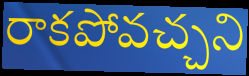
రాకపోవచ్చని